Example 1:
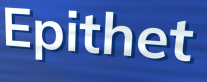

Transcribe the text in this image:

Epithet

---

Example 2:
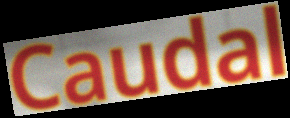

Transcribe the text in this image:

Caudal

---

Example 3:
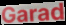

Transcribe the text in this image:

Garad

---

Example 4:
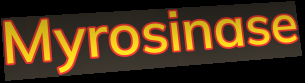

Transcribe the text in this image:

Myrosinase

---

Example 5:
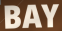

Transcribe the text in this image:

BAY